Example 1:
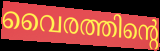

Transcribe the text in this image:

വൈരത്തിന്റെ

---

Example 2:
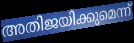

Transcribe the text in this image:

അതിജയിക്കുമെന്ന്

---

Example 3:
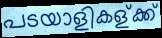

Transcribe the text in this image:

പടയാളികള്ക്ക്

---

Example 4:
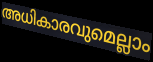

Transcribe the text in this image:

അധികാരവുമെല്ലാം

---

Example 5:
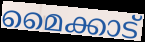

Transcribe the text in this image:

മൈക്കാട്